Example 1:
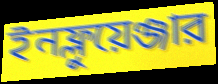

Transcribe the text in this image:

ইনফ্লুয়েঞ্জার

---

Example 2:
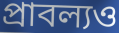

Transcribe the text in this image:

প্রাবল্যও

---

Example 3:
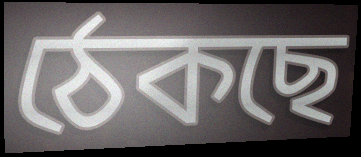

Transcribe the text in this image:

ঠেকছে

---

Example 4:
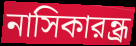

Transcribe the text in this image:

নাসিকারন্ধ্র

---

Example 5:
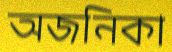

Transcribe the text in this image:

অজনিকা